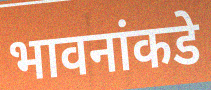
भावनांकडे